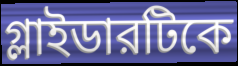
গ্লাইডারটিকে